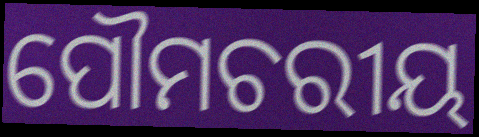
ପୌମଚରୀୟ